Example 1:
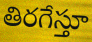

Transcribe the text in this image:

తిరగేస్తూ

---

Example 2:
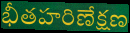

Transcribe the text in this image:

భీతహరిణేక్షణ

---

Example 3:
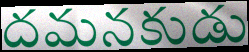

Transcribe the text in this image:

దమనకుడు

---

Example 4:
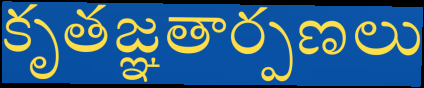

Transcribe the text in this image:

కృతజ్ఞతార్పణలు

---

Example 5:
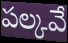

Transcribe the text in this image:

పల్కవే